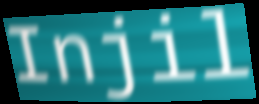
Injil